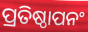
ପ୍ରତିଷ୍ଠାପନଂ